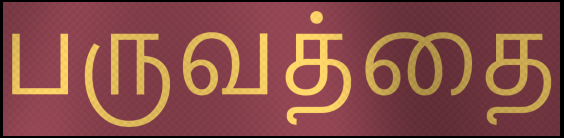
பருவத்தை